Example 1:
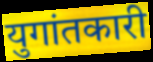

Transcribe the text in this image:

युगांतकारी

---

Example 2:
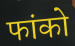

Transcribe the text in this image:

फांको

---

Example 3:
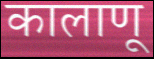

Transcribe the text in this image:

कालाणू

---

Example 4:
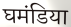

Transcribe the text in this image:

घमंडिया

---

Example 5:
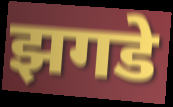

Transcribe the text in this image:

झगडे